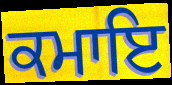
ਕਮਾਇ